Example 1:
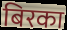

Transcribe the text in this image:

बिरका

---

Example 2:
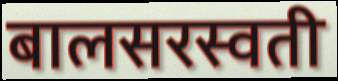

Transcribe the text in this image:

बालसरस्वती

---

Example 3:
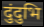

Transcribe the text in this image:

दुंदुभि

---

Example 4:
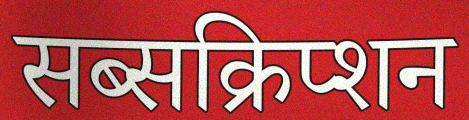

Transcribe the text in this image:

सब्सक्रिप्शन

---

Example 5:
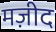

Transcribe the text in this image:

मज़ीद